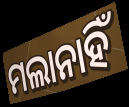
ମଲାନାହିଁ